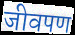
जीवपण